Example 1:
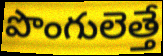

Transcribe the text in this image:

పొంగులెత్తే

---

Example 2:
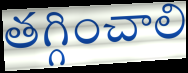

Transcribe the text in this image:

తగ్గించాలి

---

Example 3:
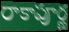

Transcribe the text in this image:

రాకాపూర్ణ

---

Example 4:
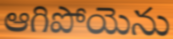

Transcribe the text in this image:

ఆగిపోయెను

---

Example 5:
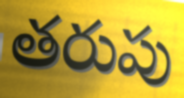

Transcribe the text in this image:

తరుపు